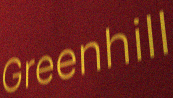
Greenhill